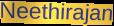
Neethirajan